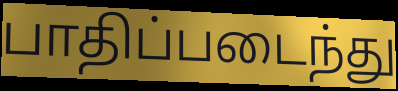
பாதிப்படைந்து